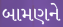
બામણને